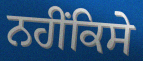
ਨਹੀਂਕਿਸੇ